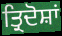
ਤ੍ਰਿਦੋਸ਼ਾਂ